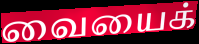
வையைக்